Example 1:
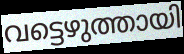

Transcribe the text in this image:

വട്ടെഴുത്തായി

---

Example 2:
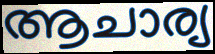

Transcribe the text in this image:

ആചാര്യ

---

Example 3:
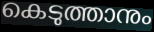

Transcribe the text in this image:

കെടുത്താനും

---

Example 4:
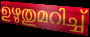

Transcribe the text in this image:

ഉഴുതുമറിച്ച്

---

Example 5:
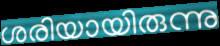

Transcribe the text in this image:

ശരിയായിരുന്നു